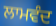
ਲਾਮਵੰਦ